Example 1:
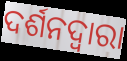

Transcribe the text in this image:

ଦର୍ଶନଦ୍ୱାରା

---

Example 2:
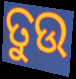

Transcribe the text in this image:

ତୁଉ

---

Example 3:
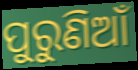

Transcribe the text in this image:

ପୁରୁଣିଆଁ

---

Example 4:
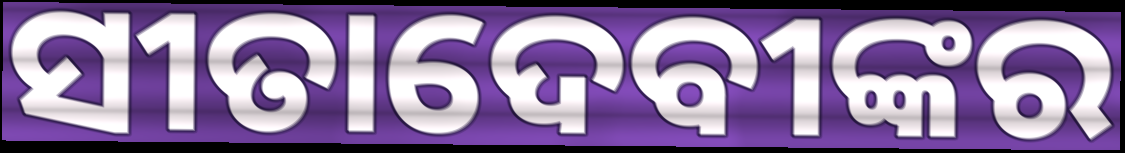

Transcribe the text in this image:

ସୀତାଦେବୀଙ୍କର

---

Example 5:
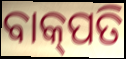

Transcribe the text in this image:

ବାକ୍‌ପତି